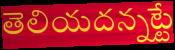
తెలియదన్నట్టే